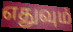
எதுவும்